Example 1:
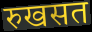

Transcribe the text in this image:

रुखसत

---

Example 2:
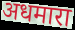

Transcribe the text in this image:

अधमारा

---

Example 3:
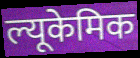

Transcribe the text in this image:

ल्यूकेमिक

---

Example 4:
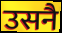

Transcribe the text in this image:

उसनै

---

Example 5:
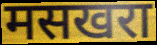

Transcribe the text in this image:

मसखरा